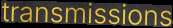
transmissions